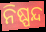
ନିଷ୍ପନ୍ଦ